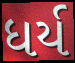
ધર્ય